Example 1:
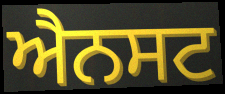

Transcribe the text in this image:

ਐਨਸਟ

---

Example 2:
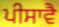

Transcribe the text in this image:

ਪੀਸਾਵੈ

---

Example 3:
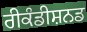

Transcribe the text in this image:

ਰੀਕੰਡੀਸ਼ਨਡ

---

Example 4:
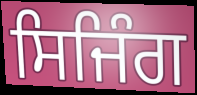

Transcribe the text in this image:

ਸਿਜਿੰਗ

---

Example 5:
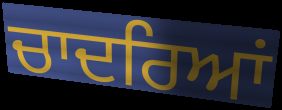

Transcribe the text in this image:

ਚਾਦਰਿਆਂ